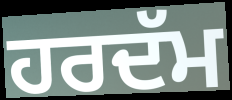
ਹਰਦੱਮ